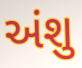
અંશુ